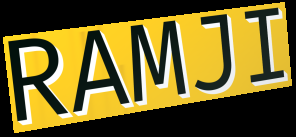
RAMJI